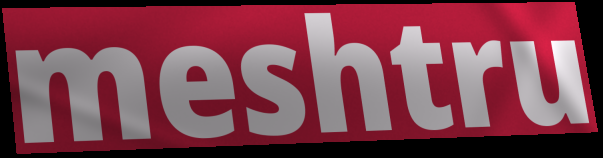
meshtru